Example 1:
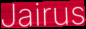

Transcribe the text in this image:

Jairus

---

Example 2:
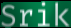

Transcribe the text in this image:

Srik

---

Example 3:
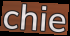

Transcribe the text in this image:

chie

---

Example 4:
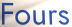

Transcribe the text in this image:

Fours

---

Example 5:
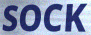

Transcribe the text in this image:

SOCK